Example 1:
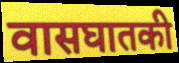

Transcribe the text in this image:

वासघातकी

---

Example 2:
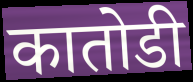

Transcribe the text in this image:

कातोडी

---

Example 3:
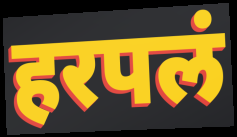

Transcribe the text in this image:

हरपलं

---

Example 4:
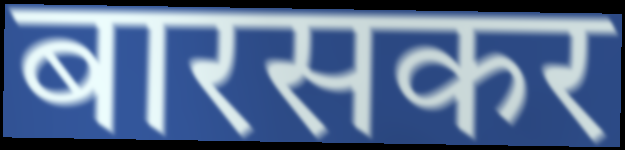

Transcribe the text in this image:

बारसकर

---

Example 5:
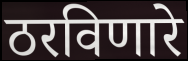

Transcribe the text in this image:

ठरविणारे